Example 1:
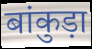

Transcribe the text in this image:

बांकुड़ा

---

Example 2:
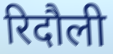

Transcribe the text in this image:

रिदौली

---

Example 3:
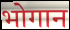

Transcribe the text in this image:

भोगान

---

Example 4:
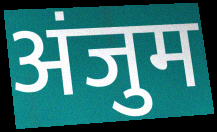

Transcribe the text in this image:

अंजुम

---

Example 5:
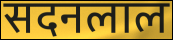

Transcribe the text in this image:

सदनलाल